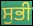
ਸੁਭੀ